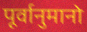
पूर्वानुमानो